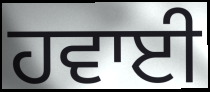
ਹਵਾਈ